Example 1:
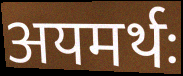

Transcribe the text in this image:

अयमर्थः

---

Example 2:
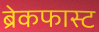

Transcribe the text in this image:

ब्रेकफास्ट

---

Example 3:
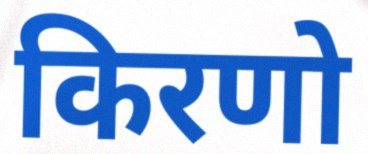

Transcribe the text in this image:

किरणो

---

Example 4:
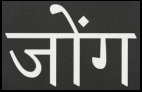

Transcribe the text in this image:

जोंग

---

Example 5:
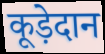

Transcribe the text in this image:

कूड़ेदान